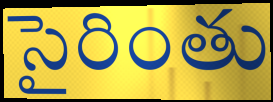
సైరింతు